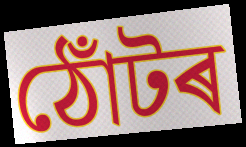
ঠোঁটৰ